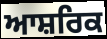
ਆਸ਼ਰਿਕ